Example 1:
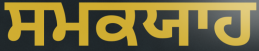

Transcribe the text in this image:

ਸਮਕਯਾਹ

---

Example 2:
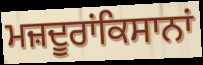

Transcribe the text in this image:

ਮਜ਼ਦੂਰਾਂਕਿਸਾਨਾਂ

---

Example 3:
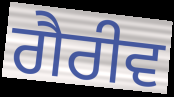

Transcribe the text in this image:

ਗੈਰੀਵ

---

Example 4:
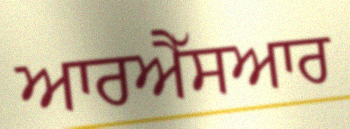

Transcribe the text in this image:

ਆਰਐੱਸਆਰ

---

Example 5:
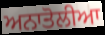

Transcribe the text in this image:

ਅਨਾਤੋਲੀਆ